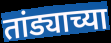
तांड्याच्या